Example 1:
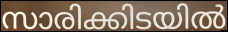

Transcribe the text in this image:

സാരിക്കിടയിൽ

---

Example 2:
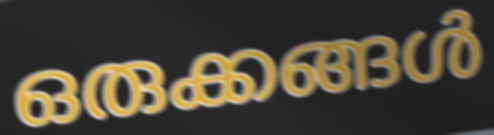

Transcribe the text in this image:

ഒരുക്കങ്ങൾ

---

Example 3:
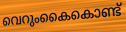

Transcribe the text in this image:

വെറുംകൈകൊണ്ട്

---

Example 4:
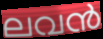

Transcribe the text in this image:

ലവൻ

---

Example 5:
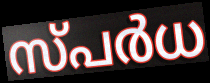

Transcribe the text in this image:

സ്പർധ